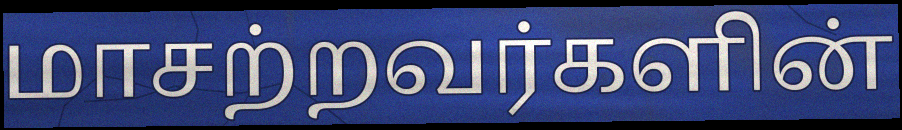
மாசற்றவர்களின்